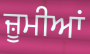
ਜ਼ੂਮੀਆਂ